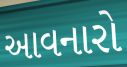
આવનારો